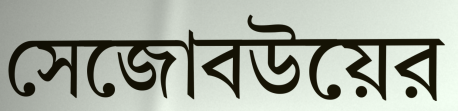
সেজোবউয়ের